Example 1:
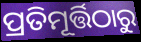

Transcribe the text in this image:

ପ୍ରତିମୂର୍ତ୍ତିଠାରୁ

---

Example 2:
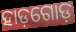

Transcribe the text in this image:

ହାଡ଼ଗୋଡ଼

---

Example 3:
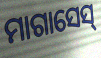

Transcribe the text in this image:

ମାଗାସେସ୍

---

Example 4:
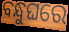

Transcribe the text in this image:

ବନ୍ଧୁଘରେ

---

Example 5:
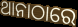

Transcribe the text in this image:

ଥାନାଠାରେ